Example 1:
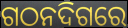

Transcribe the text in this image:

ଗଠନଦିଗରେ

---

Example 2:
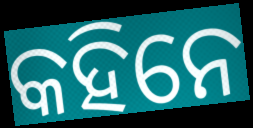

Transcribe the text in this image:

କହିନେ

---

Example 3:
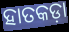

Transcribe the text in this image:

ହାତକଡ଼ା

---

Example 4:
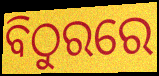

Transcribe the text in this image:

ବିଠୁରରେ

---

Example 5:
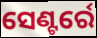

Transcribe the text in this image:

ସେଣ୍ଟର୍ରେ